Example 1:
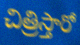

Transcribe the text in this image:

చిత్రిస్తారో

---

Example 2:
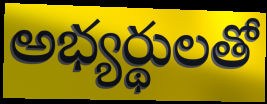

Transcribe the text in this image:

అభ్యర్థులతో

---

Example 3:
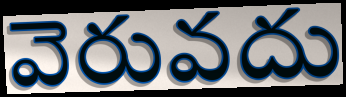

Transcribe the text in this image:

వెరువదు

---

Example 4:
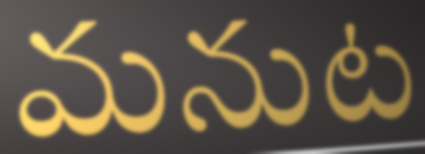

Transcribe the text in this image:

మనుట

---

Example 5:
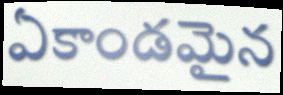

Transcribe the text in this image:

ఏకాండమైన